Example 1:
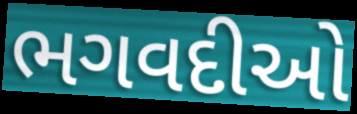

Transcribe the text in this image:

ભગવદીઓ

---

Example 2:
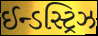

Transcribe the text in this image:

ઈન્ડસ્ટ્રિઝ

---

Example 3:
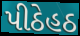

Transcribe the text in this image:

પીઠેહઠ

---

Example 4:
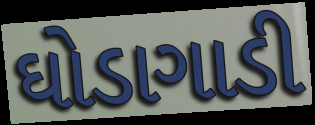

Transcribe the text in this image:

ઘોડાગાડી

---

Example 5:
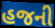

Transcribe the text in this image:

હજની